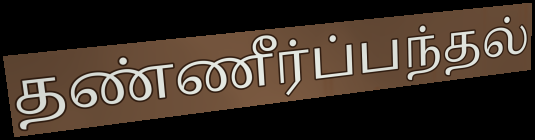
தண்ணீர்ப்பந்தல்